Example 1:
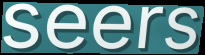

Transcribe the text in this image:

seers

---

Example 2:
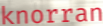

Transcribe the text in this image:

knorran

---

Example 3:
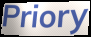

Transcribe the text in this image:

Priory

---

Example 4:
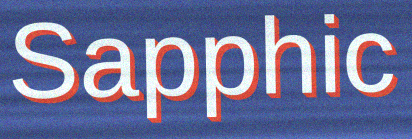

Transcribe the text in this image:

Sapphic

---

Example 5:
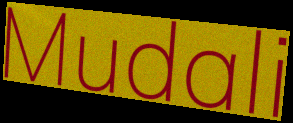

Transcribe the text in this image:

Mudali